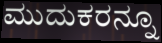
ಮುದುಕರನ್ನೂ